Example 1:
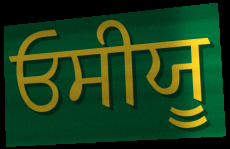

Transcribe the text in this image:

ਓਸੀਯੂ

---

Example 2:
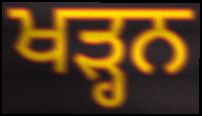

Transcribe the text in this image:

ਖੜ੍ਹਨ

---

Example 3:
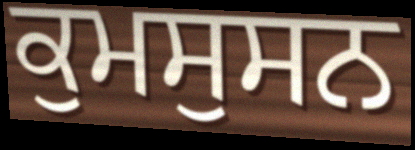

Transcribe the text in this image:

ਕੁਮਸੁਸਨ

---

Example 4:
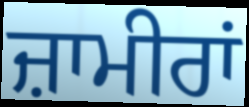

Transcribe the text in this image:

ਜ਼ਾਮੀਰਾਂ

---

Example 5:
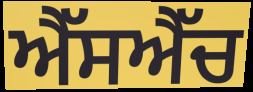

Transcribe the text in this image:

ਐੱਸਐੱਚ